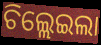
ଚିଲ୍ଲେଇଲା